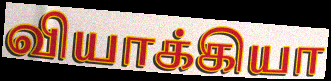
வியாக்கியா